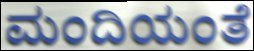
ಮಂದಿಯಂತೆ